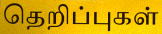
தெறிப்புகள்